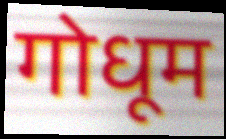
गोधूम